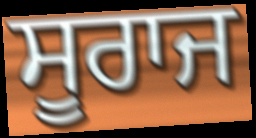
ਸੂਰਾਜ